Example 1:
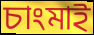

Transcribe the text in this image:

চাংমাই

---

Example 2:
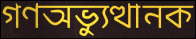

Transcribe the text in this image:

গণঅভ্যুত্থানক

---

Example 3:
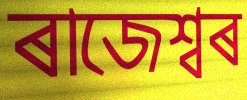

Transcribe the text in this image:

ৰাজেশ্বৰ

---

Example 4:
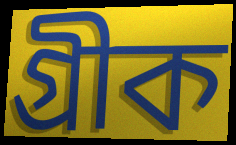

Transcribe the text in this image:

গ্ৰীক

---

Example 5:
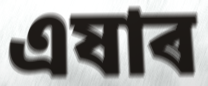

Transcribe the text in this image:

এষাৰ